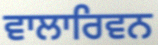
ਵਾਲਾਰਿਵਨ